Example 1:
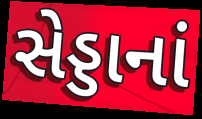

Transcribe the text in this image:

સેડ્ડાનાં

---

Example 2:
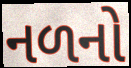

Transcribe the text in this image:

નળનો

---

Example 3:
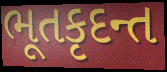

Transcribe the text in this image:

ભૂતકૃદન્ત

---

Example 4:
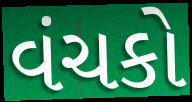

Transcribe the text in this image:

વંચકો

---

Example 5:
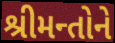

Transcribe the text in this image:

શ્રીમન્તોને